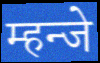
म्हन्जे